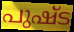
പുഷ്ട